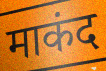
माकंद